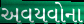
અવયવોના